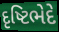
દૃષ્ટિભેદે